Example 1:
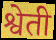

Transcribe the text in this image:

श्वेती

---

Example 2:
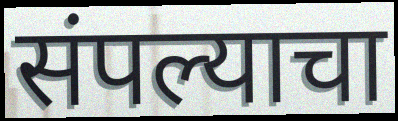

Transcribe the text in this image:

संपल्याचा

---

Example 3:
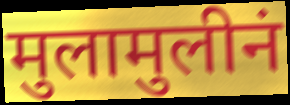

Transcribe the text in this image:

मुलामुलीनं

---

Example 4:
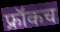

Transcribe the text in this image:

फ्रॉकच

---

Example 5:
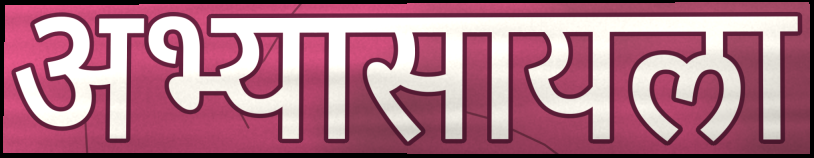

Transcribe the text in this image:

अभ्यासायला